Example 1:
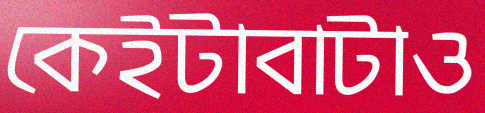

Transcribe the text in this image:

কেইটাবাটাও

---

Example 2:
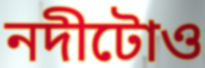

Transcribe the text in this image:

নদীটোও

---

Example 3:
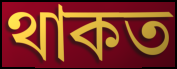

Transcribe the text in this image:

থাকত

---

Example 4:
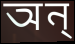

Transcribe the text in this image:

অন্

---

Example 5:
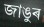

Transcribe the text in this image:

জাঙুৰ